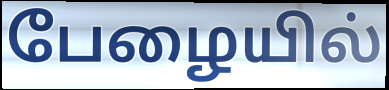
பேழையில்